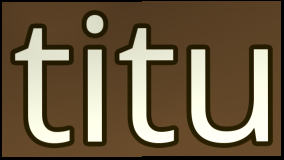
titu